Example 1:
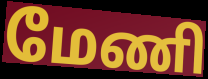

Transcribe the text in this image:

மேணி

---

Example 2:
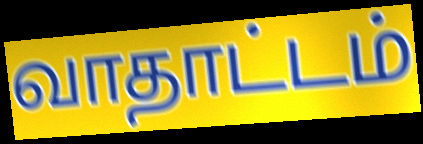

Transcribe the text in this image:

வாதாட்டம்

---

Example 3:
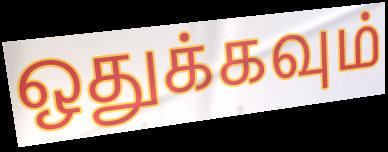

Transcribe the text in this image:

ஒதுக்கவும்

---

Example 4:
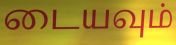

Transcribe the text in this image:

டையவும்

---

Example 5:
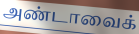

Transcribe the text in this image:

அண்டாவைக்